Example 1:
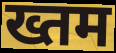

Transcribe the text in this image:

ख्तम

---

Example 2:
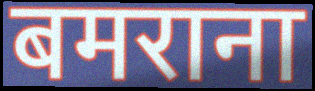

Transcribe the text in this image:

बमराना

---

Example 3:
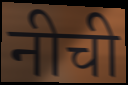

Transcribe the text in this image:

नीची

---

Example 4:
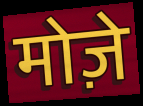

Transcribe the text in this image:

मोज़े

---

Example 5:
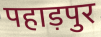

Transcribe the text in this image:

पहाड़पुर